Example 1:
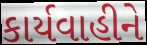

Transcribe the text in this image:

કાર્યવાહીને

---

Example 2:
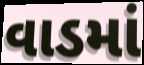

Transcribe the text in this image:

વાડમાં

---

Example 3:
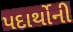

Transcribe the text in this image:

પદાર્થોની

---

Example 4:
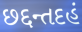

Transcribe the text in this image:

છદ્દન્તદહં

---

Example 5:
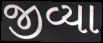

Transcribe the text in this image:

જીવ્યા